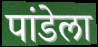
पांडेला